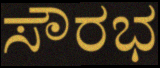
ಸೌರಭ